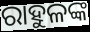
ରାହୁଳଙ୍କ